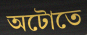
অটোতে